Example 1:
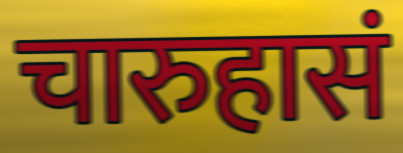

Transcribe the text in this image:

चारुहासं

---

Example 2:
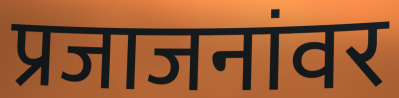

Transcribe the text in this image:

प्रजाजनांवर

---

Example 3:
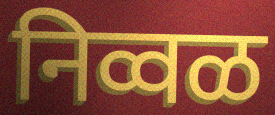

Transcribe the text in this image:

निव्‍वळ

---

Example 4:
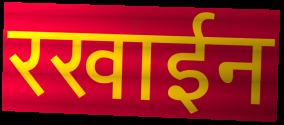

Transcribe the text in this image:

रखाईन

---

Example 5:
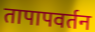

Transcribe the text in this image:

तापापवर्तन